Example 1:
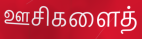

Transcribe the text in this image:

ஊசிகளைத்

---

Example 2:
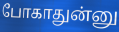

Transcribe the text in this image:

போகாதுன்னு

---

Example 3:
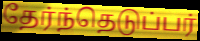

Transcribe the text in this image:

தேர்ந்தெடுப்பர்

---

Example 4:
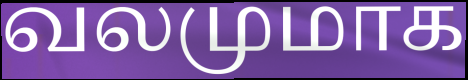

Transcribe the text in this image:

வலமுமாக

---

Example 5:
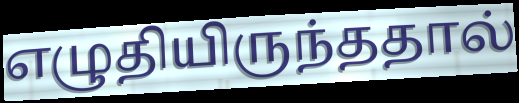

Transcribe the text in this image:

எழுதியிருந்ததால்